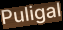
Puligal